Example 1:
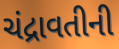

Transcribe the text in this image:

ચંદ્રાવતીની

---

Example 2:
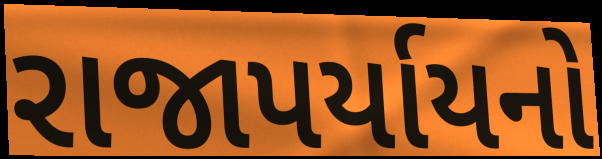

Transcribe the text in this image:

રાજાપર્યાયનો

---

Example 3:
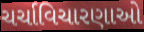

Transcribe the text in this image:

ચર્ચાવિચારણાઓ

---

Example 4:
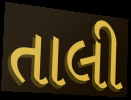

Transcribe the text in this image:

તાલી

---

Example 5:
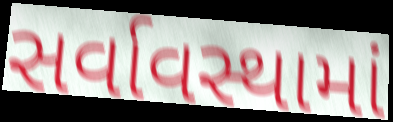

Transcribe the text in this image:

સર્વાવસ્થામાં